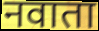
नवाता